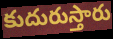
కుదురుస్తారు